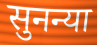
सुनन्या